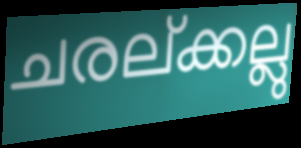
ചരല്ക്കല്ലു